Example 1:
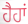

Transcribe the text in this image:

ਹੈਹਾਂ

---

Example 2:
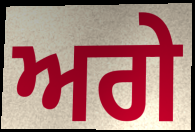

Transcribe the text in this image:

ਅਗੇ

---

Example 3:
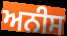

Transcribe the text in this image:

ਅਨੀਸ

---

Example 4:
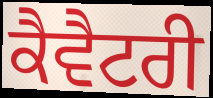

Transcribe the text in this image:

ਕੈਵੈਟਰੀ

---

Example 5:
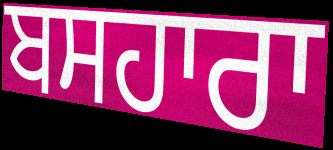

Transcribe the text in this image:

ਬਸਹਾਰਾ